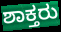
ಶಾಕ್ತರು